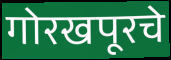
गोरखपूरचे